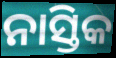
ନାସ୍ତିକ